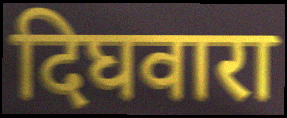
दिघवारा